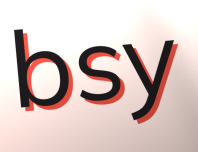
bsy